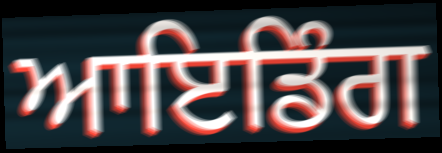
ਆਇਡਿੰਗ